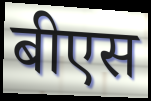
बीएस